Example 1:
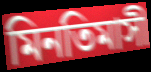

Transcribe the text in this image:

মিনতিমাসী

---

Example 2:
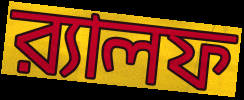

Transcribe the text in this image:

র‍্যালফ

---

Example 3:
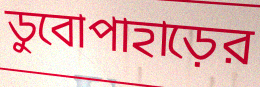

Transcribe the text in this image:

ডুবোপাহাড়ের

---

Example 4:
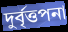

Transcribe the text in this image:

দুর্বৃত্তপনা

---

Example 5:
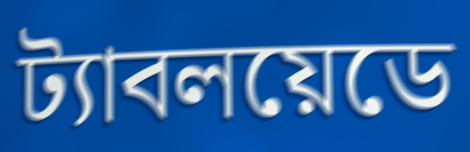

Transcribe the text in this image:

ট্যাবলয়েডে